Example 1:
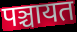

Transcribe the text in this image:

पञ्चायत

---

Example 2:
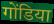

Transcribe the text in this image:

गोंडिया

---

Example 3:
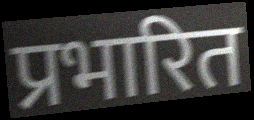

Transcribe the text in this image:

प्रभारित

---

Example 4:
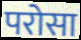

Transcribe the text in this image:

परोसा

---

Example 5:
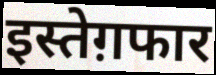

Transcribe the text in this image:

इस्तेग़फार